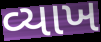
વ્યાખ